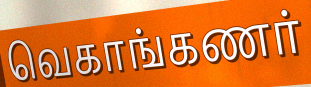
வெகாங்கணர்